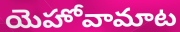
యెహోవామాట